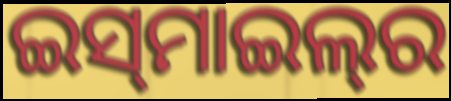
ଇସ୍‌ମାଇଲ୍‌ର